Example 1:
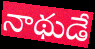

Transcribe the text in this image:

నాథుడే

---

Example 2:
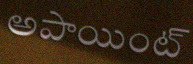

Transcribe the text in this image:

అపాయింట్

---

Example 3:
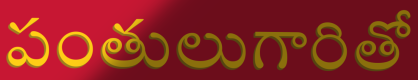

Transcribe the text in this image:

పంతులుగారితో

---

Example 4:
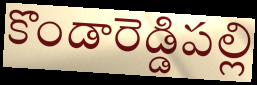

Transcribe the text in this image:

కొండారెడ్డిపల్లి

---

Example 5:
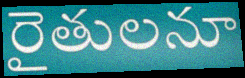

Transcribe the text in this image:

రైతులనూ